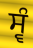
ਸ੍ਵੰ